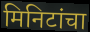
मिनिटांचा